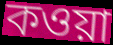
কওয়া